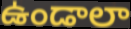
ఉండాలా